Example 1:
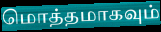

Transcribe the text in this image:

மொத்தமாகவும்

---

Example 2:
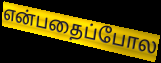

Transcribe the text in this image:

என்பதைப்போல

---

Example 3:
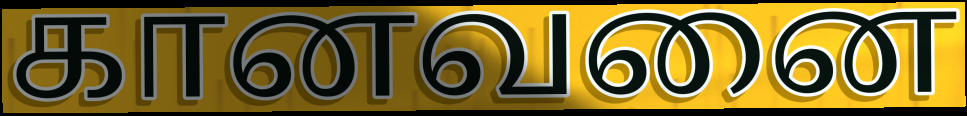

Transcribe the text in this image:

கானவனை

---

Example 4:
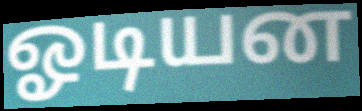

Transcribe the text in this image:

ஓடியன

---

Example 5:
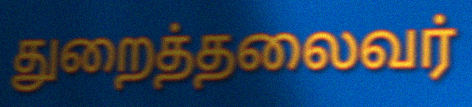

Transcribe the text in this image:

துறைத்தலைவர்